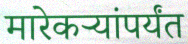
मारेकऱ्यांपर्यंत